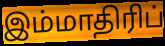
இம்மாதிரிப்